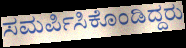
ಸಮರ್ಪಿಸಿಕೊಂಡಿದ್ದರು